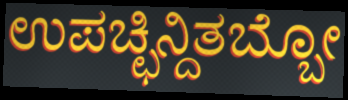
ಉಪಚ್ಛಿನ್ದಿತಬ್ಬೋ